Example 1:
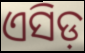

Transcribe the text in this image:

ଏସିଡ଼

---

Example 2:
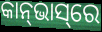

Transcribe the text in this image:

କାନ୍‌ଭାସ୍‌ରେ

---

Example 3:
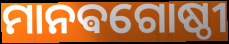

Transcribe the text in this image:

ମାନଵଗୋଷ୍ଠୀ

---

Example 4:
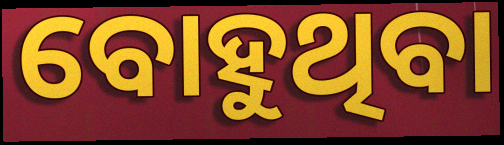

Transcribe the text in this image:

ବୋହୁଥିବା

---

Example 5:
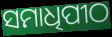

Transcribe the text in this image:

ସମାଧିପୀଠ